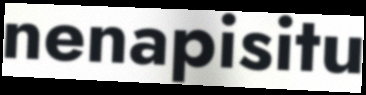
nenapisitu